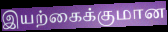
இயற்கைக்குமான